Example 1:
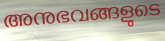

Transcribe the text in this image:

അനുഭവങ്ങളുടെ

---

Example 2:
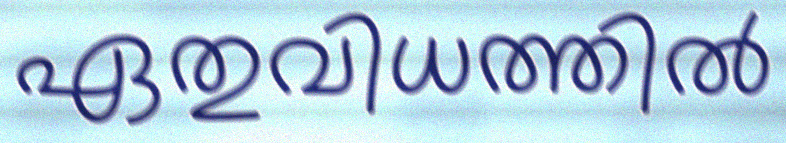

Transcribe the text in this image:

ഏതുവിധത്തിൽ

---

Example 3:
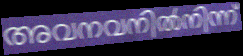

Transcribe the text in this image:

അവനവനിൽനിന്ന്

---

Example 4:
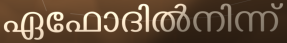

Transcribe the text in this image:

ഏഫോദിൽനിന്ന്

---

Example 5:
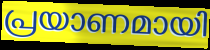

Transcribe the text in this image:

പ്രയാണമായി